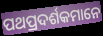
ପଥପ୍ରଦର୍ଶକମାନେ